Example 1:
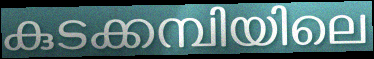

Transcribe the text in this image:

കുടക്കമ്പിയിലെ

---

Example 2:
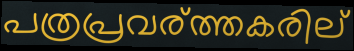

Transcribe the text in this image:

പത്രപ്രവര്ത്തകരില്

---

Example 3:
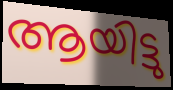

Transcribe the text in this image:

ആയിട്ടു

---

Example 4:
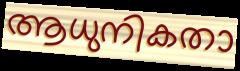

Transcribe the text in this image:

ആധുനികതാ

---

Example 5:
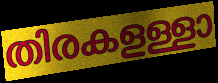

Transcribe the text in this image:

തിരകളള്ളാ